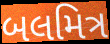
બલમિત્ર